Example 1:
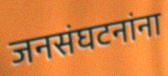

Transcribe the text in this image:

जनसंघटनांना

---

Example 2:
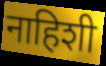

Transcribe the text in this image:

नाहिशी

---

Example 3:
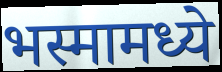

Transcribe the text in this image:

भस्मामध्ये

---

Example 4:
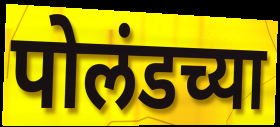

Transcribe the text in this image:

पोलंडच्या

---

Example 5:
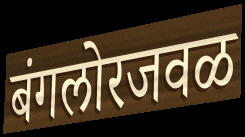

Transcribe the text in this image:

बंगलोरजवळ